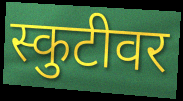
स्कुटीवर